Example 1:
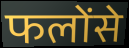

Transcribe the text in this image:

फलोंसे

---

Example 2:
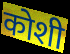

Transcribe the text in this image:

कोशी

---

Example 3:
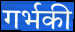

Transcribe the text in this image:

गर्भकी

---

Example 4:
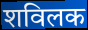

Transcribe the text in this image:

शविलक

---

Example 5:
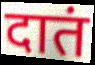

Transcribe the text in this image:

दातं